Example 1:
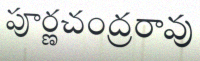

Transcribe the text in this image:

పూర్ణచంద్రరావు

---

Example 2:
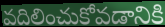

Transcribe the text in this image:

వదిలించుకోవడానికి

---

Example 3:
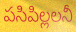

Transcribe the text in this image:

పసిపిల్లలనీ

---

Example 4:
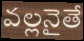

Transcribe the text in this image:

వల్లనైతే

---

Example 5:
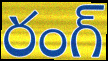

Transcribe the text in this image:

రంగ్